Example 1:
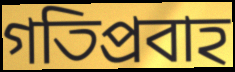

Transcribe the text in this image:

গতিপ্রবাহ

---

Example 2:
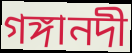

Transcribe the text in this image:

গঙ্গানদী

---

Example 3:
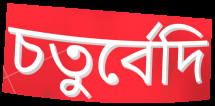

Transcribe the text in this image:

চতুর্বেদি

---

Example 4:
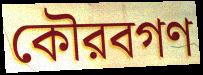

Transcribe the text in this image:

কৌরবগণ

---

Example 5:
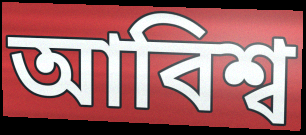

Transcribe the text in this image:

আবিশ্ব